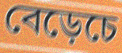
বেড়েচে